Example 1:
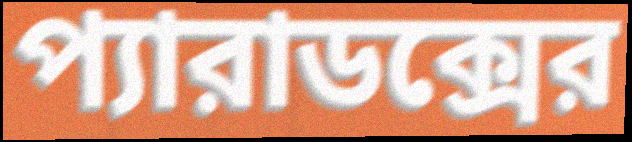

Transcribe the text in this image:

প্যারাডক্সের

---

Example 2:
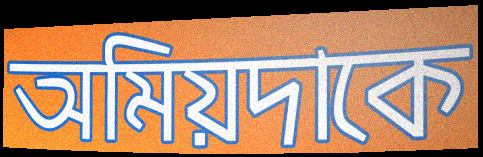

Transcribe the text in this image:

অমিয়দাকে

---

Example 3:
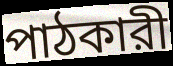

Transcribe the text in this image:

পাঠকারী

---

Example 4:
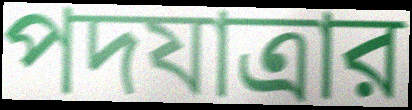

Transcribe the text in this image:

পদযাত্রার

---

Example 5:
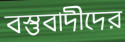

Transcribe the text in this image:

বস্তুবাদীদের